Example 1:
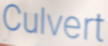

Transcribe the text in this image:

Culvert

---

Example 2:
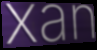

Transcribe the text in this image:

xan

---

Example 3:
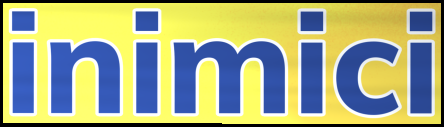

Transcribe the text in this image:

inimici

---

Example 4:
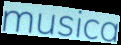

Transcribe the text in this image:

musica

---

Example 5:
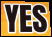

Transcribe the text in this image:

YES